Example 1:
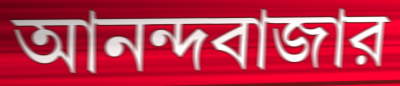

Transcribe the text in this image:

আনন্দবাজার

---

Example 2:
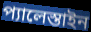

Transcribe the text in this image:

প্যালেস্তাইন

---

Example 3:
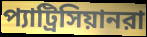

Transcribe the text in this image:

প্যাট্রিসিয়ানরা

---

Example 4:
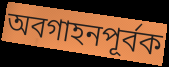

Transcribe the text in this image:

অবগাহনপূর্বক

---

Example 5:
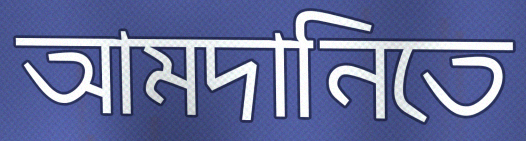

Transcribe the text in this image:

আমদানিতে